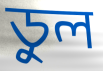
ডুল